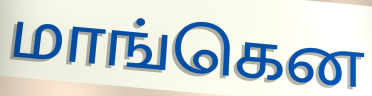
மாங்கென